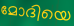
മോദിയെ